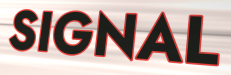
SIGNAL